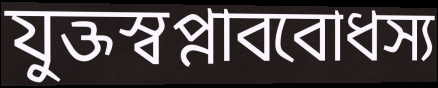
যুক্তস্বপ্নাববোধস্য